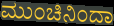
ಮುಂಚಿನಿಂದಾ